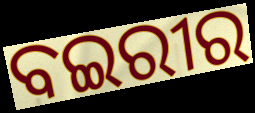
ବଇରୀର